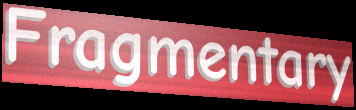
Fragmentary